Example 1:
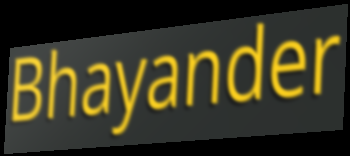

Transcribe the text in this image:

Bhayander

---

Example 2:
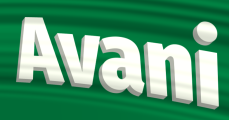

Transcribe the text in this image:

Avani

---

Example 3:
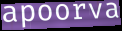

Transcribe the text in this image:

apoorva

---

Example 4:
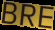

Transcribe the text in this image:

BRE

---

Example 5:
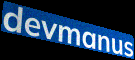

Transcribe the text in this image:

devmanus